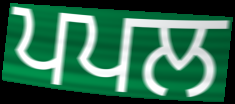
ਪਪਲ